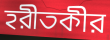
হরীতকীর